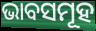
ଭାବସମୂହ